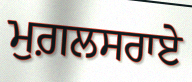
ਮੁਗ਼ਲਸਰਾਏ